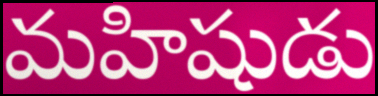
మహిషుడు